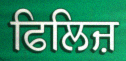
ਫਿਲਿਜ਼